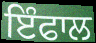
ਇੰਫਾਲ